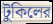
টুকিলের